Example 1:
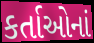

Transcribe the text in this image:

કર્તાઓનાં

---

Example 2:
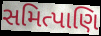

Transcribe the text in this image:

સમિત્પાણિ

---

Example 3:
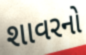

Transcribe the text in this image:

શાવરનો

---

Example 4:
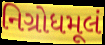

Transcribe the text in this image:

નિગ્રોધમૂલં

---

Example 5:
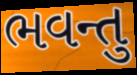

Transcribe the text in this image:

ભવન્તુ